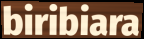
biribiara